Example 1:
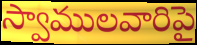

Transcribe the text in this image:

స్వాములవారిపై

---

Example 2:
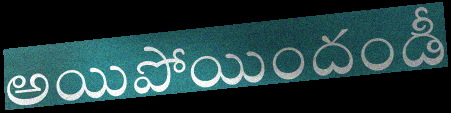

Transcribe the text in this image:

అయిపోయిందండీ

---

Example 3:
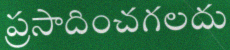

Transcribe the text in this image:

ప్రసాదించగలదు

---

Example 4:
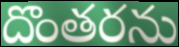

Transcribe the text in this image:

దొంతరను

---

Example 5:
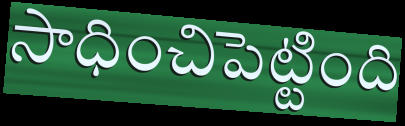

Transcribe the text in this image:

సాధించిపెట్టింది